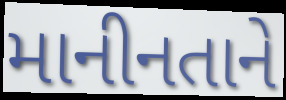
માનીનતાને